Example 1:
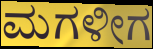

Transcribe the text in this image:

ಮಗಳೀಗ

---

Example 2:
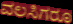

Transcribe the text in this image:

ವಲಸಿಗರೂ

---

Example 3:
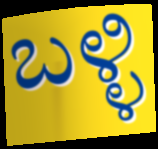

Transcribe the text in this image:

ಬಳ್ಳಿ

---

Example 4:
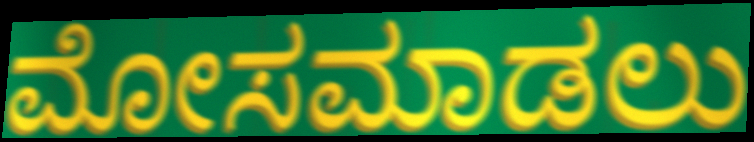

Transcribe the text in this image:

ಮೋಸಮಾಡಲು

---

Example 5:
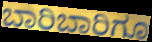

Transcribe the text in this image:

ಬಾರಿಬಾರಿಗೂ